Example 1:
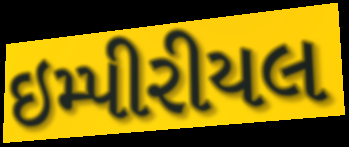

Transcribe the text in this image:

ઇમ્પીરીયલ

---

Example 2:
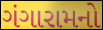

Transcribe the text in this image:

ગંગારામનો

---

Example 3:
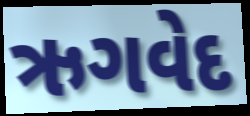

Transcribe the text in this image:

ઋગવેદ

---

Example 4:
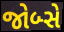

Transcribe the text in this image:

જોબ્સે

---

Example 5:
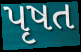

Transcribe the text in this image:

પૃષત